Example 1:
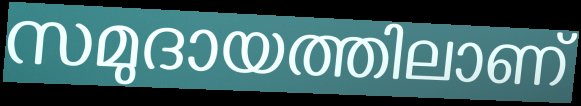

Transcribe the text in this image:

സമുദായത്തിലാണ്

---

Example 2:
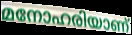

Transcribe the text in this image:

മനോഹരിയാണ്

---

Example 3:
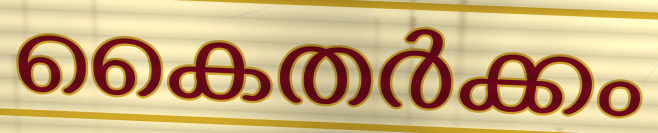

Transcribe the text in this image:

കൈതർക്കം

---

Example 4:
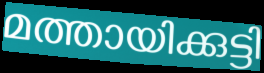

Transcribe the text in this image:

മത്തായിക്കുട്ടി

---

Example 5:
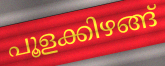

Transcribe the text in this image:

പൂളക്കിഴങ്ങ്